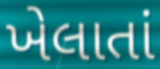
ખેલાતાં